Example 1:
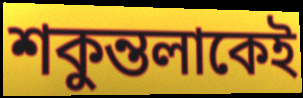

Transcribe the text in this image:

শকুন্তলাকেই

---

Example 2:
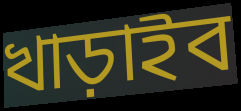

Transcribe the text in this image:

খাড়াইব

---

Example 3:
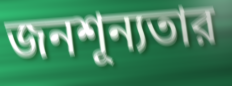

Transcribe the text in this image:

জনশূন্যতার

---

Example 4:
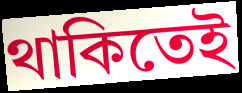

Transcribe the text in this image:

থাকিতেই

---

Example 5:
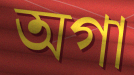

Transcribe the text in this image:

অগা